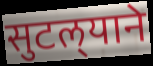
सुटल्याने